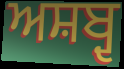
ਅਸ਼ਬ੍ਦ